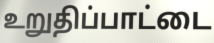
உறுதிப்பாட்டை